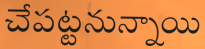
చేపట్టనున్నాయి